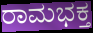
ರಾಮಭಕ್ತ